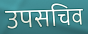
उपसचिव